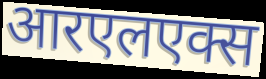
आरएलएक्स